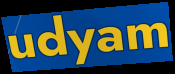
udyam